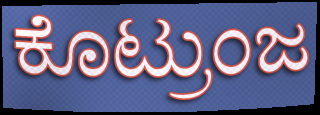
ಕೊಟ್ರುಂಜ